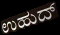
ಉಹುದ್